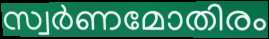
സ്വർണമോതിരം